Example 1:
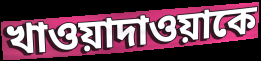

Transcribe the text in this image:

খাওয়াদাওয়াকে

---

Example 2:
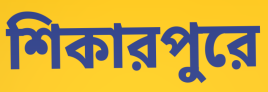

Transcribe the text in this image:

শিকারপুরে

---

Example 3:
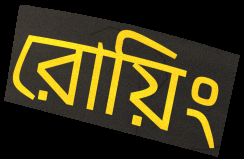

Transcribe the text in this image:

রোয়িং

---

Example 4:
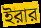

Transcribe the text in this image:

ইরার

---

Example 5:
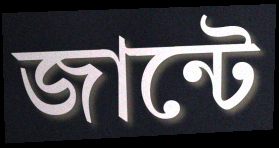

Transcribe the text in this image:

জান্টে